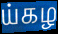
ய்கழ